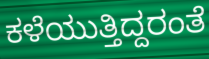
ಕಳೆಯುತ್ತಿದ್ದರಂತೆ